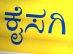
ಕೈಸಗಿ